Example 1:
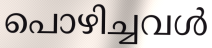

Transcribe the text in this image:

പൊഴിച്ചവൾ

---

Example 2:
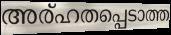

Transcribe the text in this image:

അര്ഹതപ്പെടാത്ത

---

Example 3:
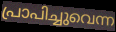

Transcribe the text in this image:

പ്രാപിച്ചുവെന്ന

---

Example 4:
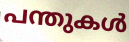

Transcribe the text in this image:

പന്തുകൾ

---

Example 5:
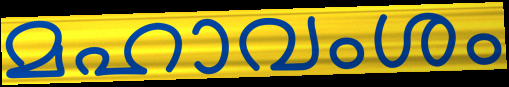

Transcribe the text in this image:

മഹാവംശം